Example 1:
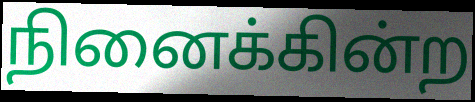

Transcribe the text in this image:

நினைக்கின்ற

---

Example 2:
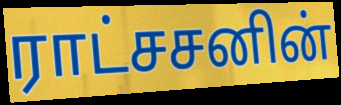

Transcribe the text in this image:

ராட்சசனின்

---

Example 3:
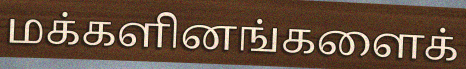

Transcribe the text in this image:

மக்களினங்களைக்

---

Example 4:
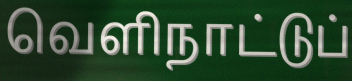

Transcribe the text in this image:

வெளிநாட்டுப்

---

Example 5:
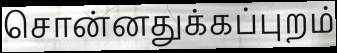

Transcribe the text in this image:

சொன்னதுக்கப்புறம்